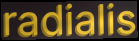
radialis